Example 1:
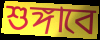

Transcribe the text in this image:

শুঙ্গাবে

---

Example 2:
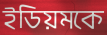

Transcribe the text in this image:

ইডিয়মকে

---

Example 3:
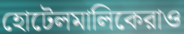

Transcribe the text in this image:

হোটেলমালিকেরাও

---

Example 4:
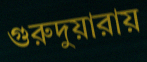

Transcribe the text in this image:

গুরুদুয়ারায়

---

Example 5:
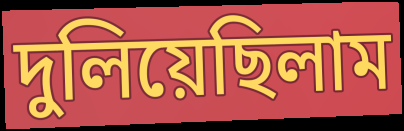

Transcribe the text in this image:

দুলিয়েছিলাম